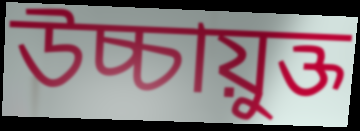
উচ্চায়ুক্ত